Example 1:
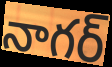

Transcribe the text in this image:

నాగర్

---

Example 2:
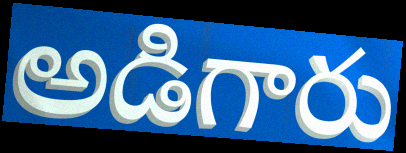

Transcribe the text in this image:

అడిగారు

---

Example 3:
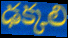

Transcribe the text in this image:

ఢక్కలి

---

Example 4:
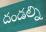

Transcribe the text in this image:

దండల్ని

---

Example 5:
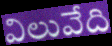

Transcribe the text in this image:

విలువేది